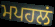
ਮਪਹਲਂ